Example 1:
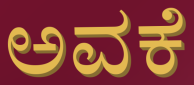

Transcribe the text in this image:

ಅವಕೆ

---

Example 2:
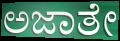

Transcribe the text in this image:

ಅಜಾತೇ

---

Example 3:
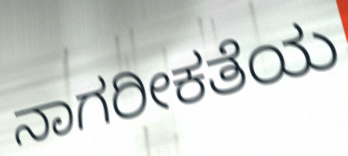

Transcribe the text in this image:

ನಾಗರೀಕತೆಯ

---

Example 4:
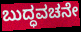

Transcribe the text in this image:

ಬುದ್ಧವಚನೇ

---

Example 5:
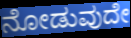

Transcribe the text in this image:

ನೋಡುವುದೇ